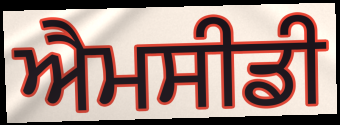
ਐਮਸੀਡੀ